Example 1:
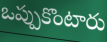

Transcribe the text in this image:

ఒప్పుకొంటారు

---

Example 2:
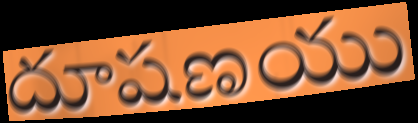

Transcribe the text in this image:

దూషణయు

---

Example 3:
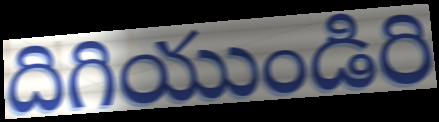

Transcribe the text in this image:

దిగియుండిరి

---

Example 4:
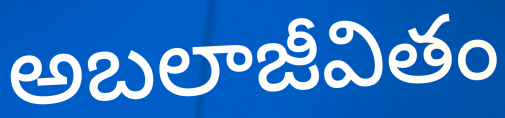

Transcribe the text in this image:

అబలాజీవితం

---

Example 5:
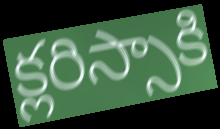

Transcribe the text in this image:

క్లరిస్సాకి